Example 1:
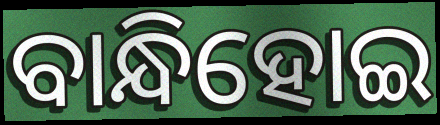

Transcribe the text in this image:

ବାନ୍ଧିହୋଇ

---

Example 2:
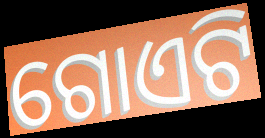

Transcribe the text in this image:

ଗୋଏଟି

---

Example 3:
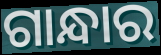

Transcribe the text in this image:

ଗାନ୍ଧାର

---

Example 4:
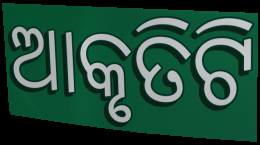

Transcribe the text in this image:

ଆକୃତିଟି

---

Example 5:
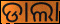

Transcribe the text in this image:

ଡାଲା